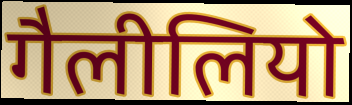
गैलीलियो